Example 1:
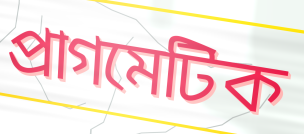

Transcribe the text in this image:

প্ৰাগমেটিক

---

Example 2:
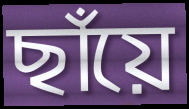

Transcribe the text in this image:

ছাঁয়ে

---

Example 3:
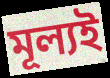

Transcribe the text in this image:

মূল্যই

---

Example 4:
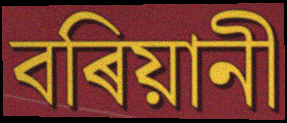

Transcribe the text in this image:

বৰিয়ানী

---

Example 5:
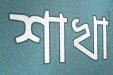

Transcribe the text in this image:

শাখা